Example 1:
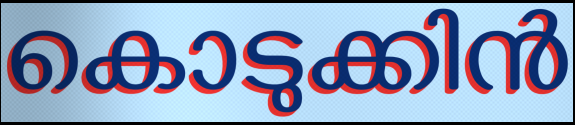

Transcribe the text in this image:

കൊടുക്കിൻ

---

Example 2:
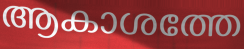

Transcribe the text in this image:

ആകാശത്തേ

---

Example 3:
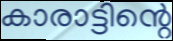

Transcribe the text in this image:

കാരാട്ടിന്റെ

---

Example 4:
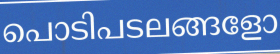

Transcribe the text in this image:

പൊടിപടലങ്ങളോ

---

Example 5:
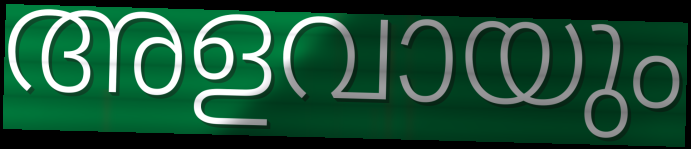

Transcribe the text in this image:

അളവായും